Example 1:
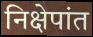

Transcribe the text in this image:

निक्षेपांत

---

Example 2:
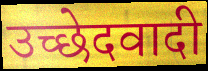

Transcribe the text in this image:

उच्छेदवादी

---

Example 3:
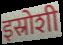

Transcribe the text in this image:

इस्रोशी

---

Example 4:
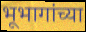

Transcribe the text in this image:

भूभागांच्या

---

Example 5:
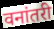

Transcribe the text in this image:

वनांतरी